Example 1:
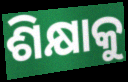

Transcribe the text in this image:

ଶିକ୍ଷାକୁ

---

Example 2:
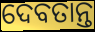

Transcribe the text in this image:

ଦେବତାନ୍ତ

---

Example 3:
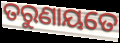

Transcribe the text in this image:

ତରୁଣାୟତେ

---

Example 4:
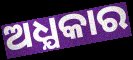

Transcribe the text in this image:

ଅଧ୍ଯକାର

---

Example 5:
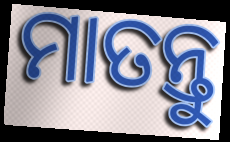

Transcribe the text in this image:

ମାତନ୍ତୁ